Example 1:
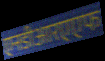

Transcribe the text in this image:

एनडीआरएएफ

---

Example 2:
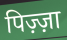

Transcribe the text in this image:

पिज़्ज़ा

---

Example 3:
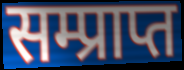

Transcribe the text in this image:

सम्प्राप्त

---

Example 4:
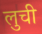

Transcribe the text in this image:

लुची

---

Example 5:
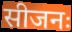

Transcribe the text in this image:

सीजनः